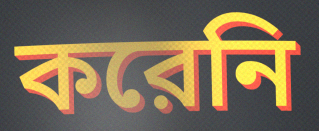
করেনি